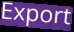
Export